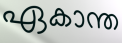
ഏകാന്ത